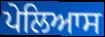
ਪੇਲਿਆਸ